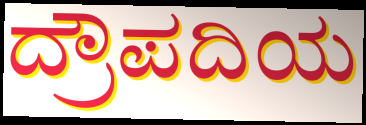
ದ್ರೌಪದಿಯ